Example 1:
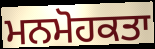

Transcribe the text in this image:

ਮਨਮੋਹਕਤਾ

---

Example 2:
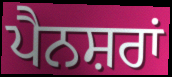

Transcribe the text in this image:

ਪੈਨਸ਼ਰਾਂ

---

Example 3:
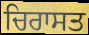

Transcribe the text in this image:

ਚਿਰਾਸਤ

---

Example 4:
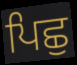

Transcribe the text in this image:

ਪਿਛੁ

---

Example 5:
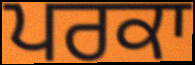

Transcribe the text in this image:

ਪਰਕਾ